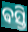
ଵସ୍ତି